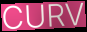
CURV